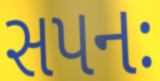
સપનઃ